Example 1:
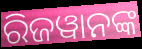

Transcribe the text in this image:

ରିଜୱାନଙ୍କ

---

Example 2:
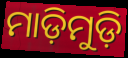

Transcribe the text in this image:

ମାଡ଼ିମୁଡ଼ି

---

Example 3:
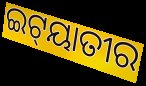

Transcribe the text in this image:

ଇଟ୍‍ୟାତୀର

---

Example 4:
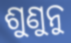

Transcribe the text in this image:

ଶୁଣୁନୁ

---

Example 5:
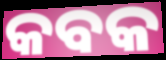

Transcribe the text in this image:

କବକ